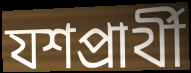
যশপ্রার্থী